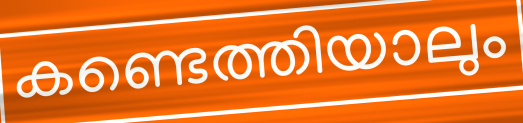
കണ്ടെത്തിയാലും